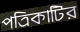
পত্রিকাটির